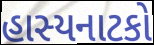
હાસ્યનાટકો